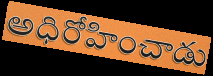
అధిరోహించాడు